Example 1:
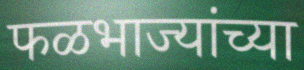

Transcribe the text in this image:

फळभाज्यांच्या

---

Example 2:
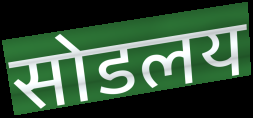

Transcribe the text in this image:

सोडलय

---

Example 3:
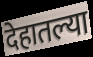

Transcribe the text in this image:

देहातल्या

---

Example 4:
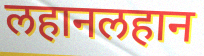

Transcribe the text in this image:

लहानलहान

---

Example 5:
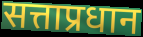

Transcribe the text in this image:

सत्ताप्रधान